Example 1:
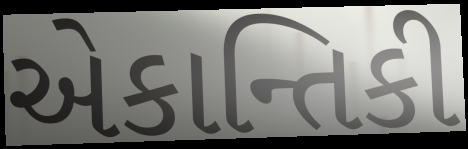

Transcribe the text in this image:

એકાન્તિકી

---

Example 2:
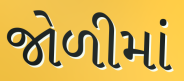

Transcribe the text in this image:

જોળીમાં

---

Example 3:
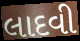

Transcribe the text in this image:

લાદવી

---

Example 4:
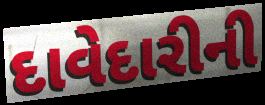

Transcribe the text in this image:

દાવેદારીની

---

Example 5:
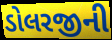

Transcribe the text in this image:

ડોલરજીની